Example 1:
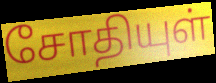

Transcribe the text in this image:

சோதியுள்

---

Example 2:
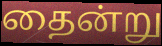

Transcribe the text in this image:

தைன்று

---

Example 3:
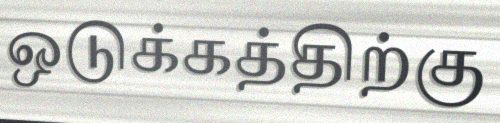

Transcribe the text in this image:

ஒடுக்கத்திற்கு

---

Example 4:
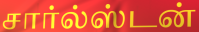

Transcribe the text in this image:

சார்ல்ஸ்டன்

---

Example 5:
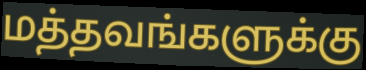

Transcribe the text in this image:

மத்தவங்களுக்கு